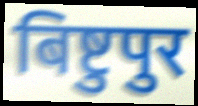
बिष्टुपुर